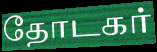
தோடகர்